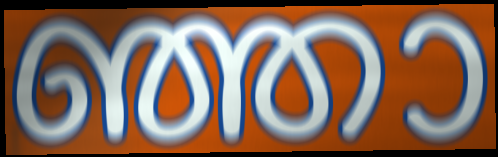
ഞ്ഞാ